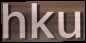
hku